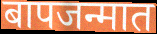
बापजन्मात